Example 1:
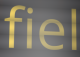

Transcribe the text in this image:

fiel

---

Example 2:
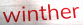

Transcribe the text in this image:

winther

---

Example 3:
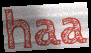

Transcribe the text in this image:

haa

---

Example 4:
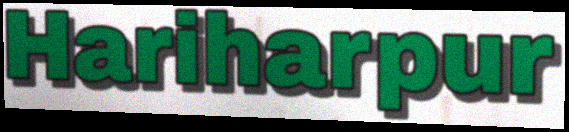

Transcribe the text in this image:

Hariharpur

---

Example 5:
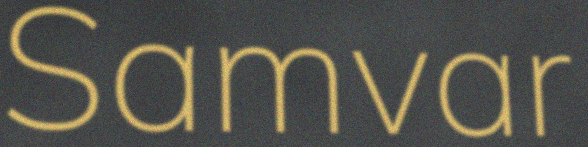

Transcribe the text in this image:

Samvar